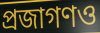
প্রজাগণও